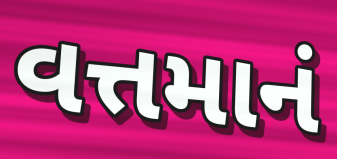
વત્તમાનં